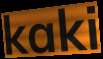
kaki